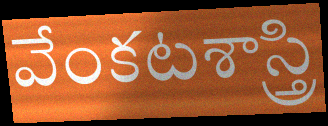
వేంకటశాస్త్రి